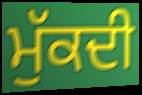
ਮੁੱਕਦੀ